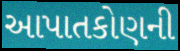
આપાતકોણની